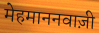
मेहमाननवाज़ी